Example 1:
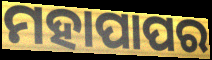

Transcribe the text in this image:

ମହାପାପର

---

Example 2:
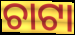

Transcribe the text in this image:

ଚାଟା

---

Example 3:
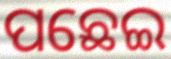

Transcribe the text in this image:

ପଛେଇ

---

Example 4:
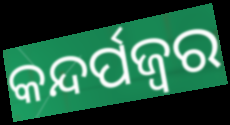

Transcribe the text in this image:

କନ୍ଦର୍ପଜ୍ବର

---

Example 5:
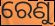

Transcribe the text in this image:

ରେଣୁ